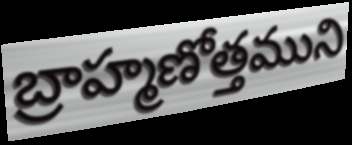
బ్రాహ్మణోత్తముని